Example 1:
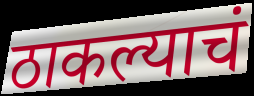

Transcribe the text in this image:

ठाकल्याचं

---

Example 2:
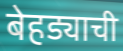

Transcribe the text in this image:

बेहड्याची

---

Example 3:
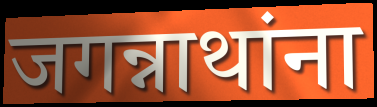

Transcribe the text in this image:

जगन्नाथांना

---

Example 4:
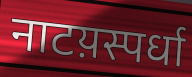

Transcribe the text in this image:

नाटय़स्पर्धा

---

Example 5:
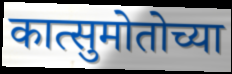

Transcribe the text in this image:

कात्सुमोतोच्या